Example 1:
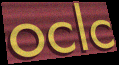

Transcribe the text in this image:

oclc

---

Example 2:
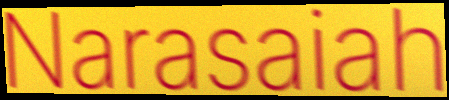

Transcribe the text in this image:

Narasaiah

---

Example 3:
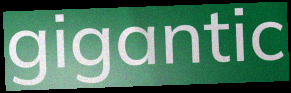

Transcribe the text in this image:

gigantic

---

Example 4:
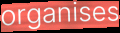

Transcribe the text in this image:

organises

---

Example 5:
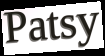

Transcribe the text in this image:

Patsy